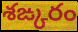
శఙ్కరం